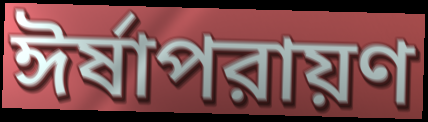
ঈর্ষাপরায়ণ